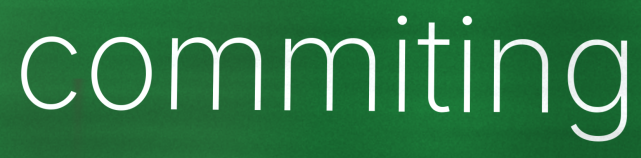
commiting